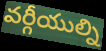
వర్గీయుల్ని